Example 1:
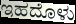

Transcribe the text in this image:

ಇಹದೊಳು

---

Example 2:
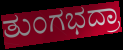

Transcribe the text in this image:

ತುಂಗಭದ್ರಾ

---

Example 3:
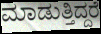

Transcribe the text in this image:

ಮಾಡುತ್ತಿದ್ದರೆ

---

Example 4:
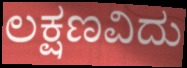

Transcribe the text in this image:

ಲಕ್ಷಣವಿದು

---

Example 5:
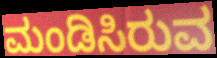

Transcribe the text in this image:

ಮಂಡಿಸಿರುವ